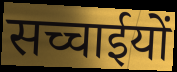
सच्चाईयों